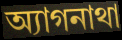
অ্যাগনাথা